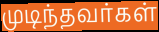
முடிந்தவர்கள்